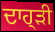
ਦਾਹ੍ੜੀ